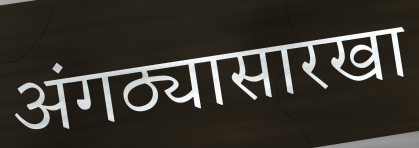
अंगठ्यासारखा